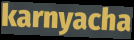
karnyacha